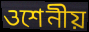
ওশেনীয়